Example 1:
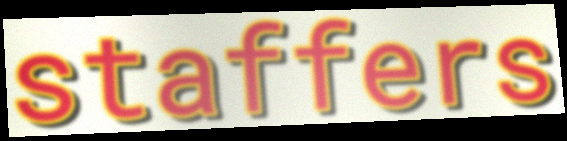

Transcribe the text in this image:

staffers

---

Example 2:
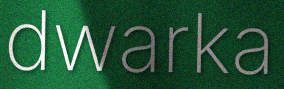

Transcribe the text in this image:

dwarka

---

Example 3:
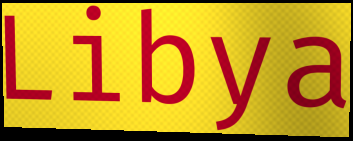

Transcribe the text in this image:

Libya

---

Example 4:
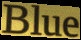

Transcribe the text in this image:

Blue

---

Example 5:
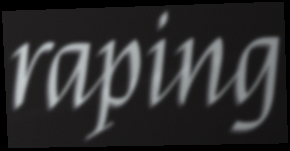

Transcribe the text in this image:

raping